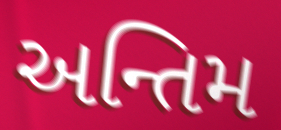
અન્તિમ